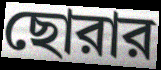
ছোরার